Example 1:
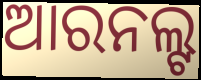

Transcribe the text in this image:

ଆରନଲ୍ଟ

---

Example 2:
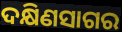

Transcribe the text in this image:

ଦକ୍ଷିଣସାଗର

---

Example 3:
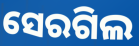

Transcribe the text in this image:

ସେରଗିଲ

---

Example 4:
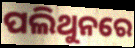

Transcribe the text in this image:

ପଲିଥୁନରେ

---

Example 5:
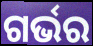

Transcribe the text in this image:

ଗର୍ଭର